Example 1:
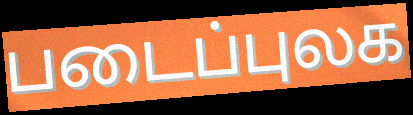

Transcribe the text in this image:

படைப்புலக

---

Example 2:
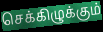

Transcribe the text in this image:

செக்கிழுக்கும்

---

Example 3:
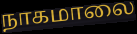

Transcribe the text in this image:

நாகமாலை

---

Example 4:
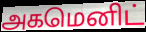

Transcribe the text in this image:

அகமெனிட்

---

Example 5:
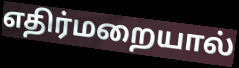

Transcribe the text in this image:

எதிர்மறையால்